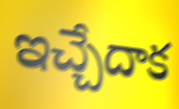
ఇచ్చేదాక